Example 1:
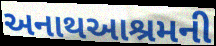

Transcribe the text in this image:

અનાથઆશ્રમની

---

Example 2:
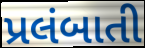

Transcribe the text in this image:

પ્રલંબાતી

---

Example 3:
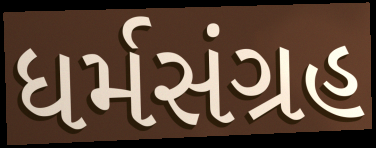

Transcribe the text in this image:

ધર્મસંગ્રહ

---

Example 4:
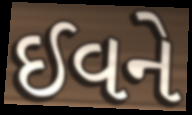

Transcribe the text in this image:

ઈવને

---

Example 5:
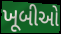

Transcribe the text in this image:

ખૂબીઓ